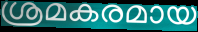
ശ്രമകരമായ